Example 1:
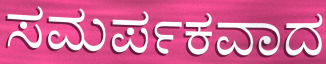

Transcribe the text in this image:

ಸಮರ್ಪಕವಾದ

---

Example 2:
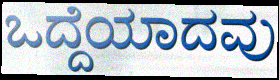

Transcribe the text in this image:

ಒದ್ದೆಯಾದವು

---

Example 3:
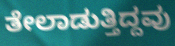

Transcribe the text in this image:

ತೇಲಾಡುತ್ತಿದ್ದವು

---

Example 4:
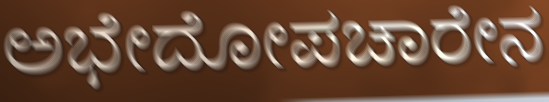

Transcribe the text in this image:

ಅಭೇದೋಪಚಾರೇನ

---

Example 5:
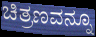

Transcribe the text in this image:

ಚಿತ್ರಣವನ್ನೂ